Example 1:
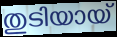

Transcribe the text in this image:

തുടിയായ്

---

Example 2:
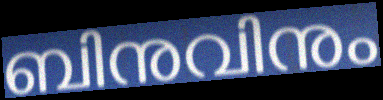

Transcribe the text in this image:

ബിനുവിനും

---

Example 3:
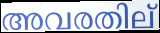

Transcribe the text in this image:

അവരതില്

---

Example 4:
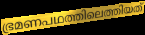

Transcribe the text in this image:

ഭ്രമണപഥത്തിലെത്തിയത്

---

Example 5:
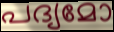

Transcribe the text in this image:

പദ്യമോ